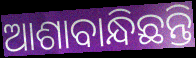
ଆଶାବାନ୍ଧିଛନ୍ତି